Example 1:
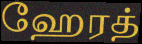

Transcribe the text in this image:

ஹேரத்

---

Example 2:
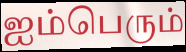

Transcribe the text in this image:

ஐம்பெரும்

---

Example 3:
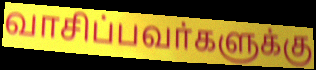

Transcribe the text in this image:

வாசிப்பவர்களுக்கு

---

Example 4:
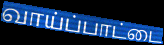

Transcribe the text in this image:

வாய்ப்பாட்டை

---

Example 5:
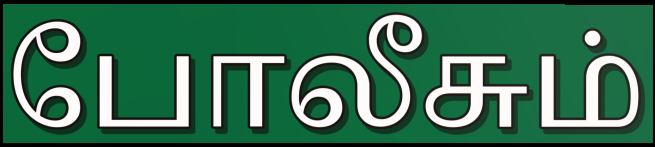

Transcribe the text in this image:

போலீசும்